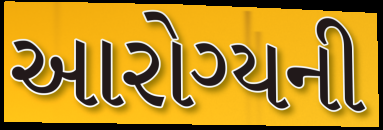
આરોગ્યની